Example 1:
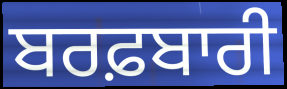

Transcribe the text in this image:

ਬਰਫ਼ਬਾਰੀ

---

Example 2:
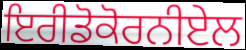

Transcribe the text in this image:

ਇਰੀਡੋਕੋਰਨੀਏਲ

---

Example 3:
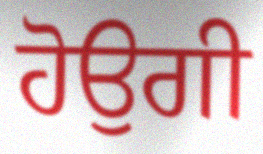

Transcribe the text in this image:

ਹੋਉਗੀ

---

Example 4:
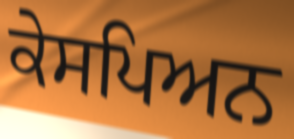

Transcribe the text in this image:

ਕੇਸਪਿਅਨ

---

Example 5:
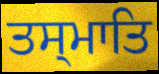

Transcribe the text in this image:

ਤਸ੍ਮਾਤਿ